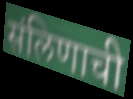
संलिणाची